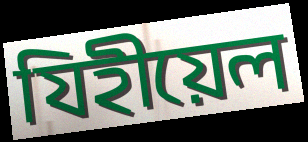
যিহীয়েল